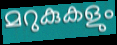
മറുകുകളും